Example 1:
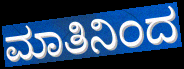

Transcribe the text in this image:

ಮಾತಿನಿಂದ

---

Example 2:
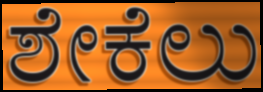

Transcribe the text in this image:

ಶೇಕೆಲು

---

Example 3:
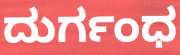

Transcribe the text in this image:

ದುರ್ಗಂಧ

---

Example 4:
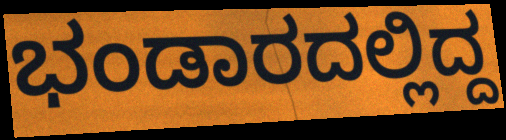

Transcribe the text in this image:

ಭಂಡಾರದಲ್ಲಿದ್ದ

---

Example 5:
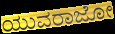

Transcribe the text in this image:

ಯುವರಾಜೋ